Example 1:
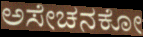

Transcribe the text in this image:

ಅಸೇಚನಕೋ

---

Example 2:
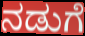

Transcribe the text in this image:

ನಡುಗೆ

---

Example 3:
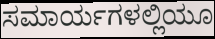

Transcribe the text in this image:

ಸಮಾರ್ಯಗಳಲ್ಲಿಯೂ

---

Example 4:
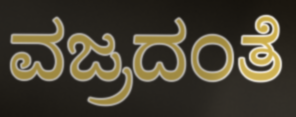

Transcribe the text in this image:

ವಜ್ರದಂತೆ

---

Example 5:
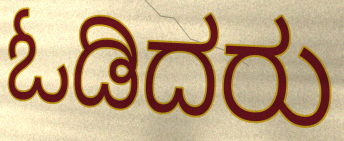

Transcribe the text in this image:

ಓಡಿದರು